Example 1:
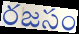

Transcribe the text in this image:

రజసం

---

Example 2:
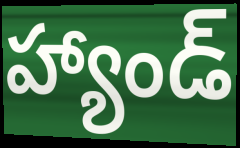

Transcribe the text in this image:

హ్యాండ్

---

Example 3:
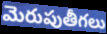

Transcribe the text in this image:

మెరుపుతీగలు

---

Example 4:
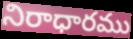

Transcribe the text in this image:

నిరాధారము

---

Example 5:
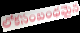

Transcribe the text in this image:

లోకసంబంధమైన